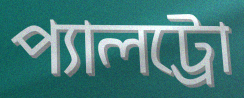
প্যালট্রো